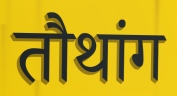
तौथांग